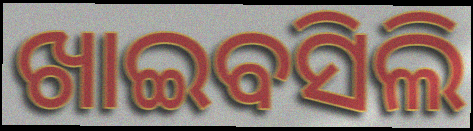
ଖାଇବସିଲି